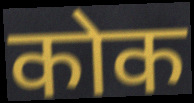
कोक